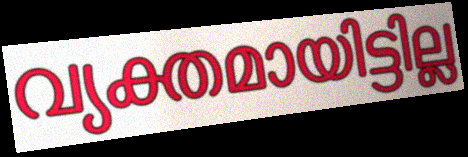
വ്യക്തമായിട്ടില്ല